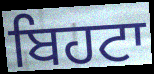
ਬਿਹਟਾ